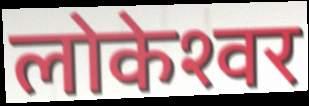
लोकेश्वर